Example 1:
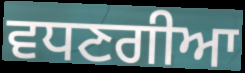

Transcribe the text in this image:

ਵਧਣਗੀਆ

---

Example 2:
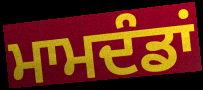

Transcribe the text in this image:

ਮਾਮਦੰਡਾਂ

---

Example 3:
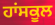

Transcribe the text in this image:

ਹਾਂਸਕੂਲ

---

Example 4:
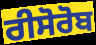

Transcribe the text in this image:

ਰੀਸੋਰੋਬ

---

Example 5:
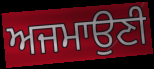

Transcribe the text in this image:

ਅਜਮਾਉਣੀ